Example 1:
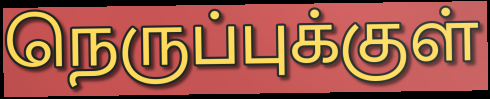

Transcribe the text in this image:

நெருப்புக்குள்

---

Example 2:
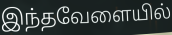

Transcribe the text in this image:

இந்தவேளையில்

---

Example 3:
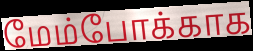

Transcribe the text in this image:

மேம்போக்காக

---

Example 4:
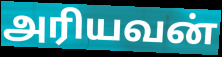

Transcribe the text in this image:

அரியவன்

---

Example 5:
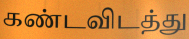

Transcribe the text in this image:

கண்டவிடத்து